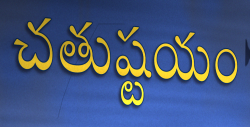
చతుష్టయం